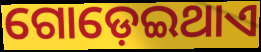
ଗୋଡ଼େଇଥାଏ